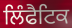
ਲਿੰਫੈਟਿਕ